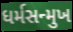
ધર્મસન્મુખ